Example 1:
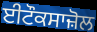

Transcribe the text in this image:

ਈਟੌਕਸਾਜ਼ੋਲ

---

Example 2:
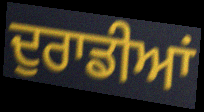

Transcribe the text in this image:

ਦੁਰਾਡੀਆਂ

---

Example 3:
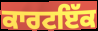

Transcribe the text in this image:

ਕਾਰਟਇੱਕ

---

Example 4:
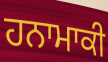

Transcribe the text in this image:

ਹਨਾਮਾਕੀ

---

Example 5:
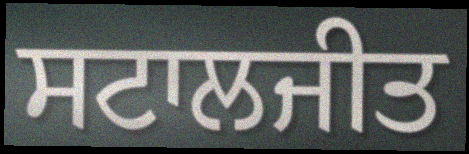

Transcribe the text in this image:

ਸਟਾਲਜੀਤ